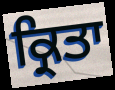
ਕ੍ਰਿਤਾ